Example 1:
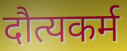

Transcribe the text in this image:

दौत्यकर्म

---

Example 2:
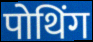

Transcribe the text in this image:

पोथिंग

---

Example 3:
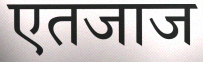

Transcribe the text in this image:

एतजाज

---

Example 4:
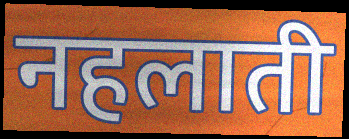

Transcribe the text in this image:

नहलाती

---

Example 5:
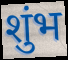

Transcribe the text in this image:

शुंभ